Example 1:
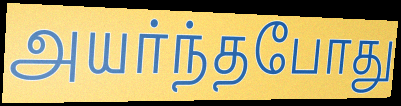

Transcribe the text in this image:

அயர்ந்தபோது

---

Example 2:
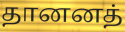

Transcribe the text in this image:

தானனத்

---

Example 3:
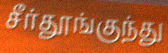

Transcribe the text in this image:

சீர்தூங்குந்து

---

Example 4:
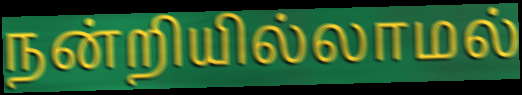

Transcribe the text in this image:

நன்றியில்லாமல்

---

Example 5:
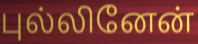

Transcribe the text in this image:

புல்லினேன்